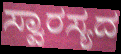
ಸ್ವಾರಸ್ಯದ